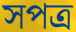
সপত্র